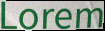
Lorem